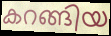
കറങ്ങിയ